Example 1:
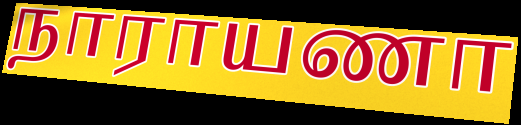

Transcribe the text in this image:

நாராயணா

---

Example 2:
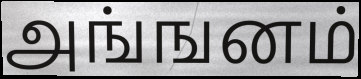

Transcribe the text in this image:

அங்ஙனம்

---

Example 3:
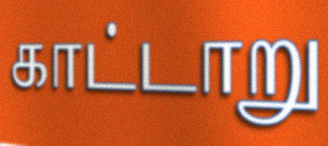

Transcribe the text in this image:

காட்டாறு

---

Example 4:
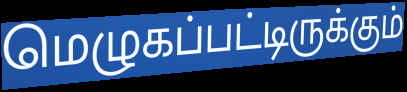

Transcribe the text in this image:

மெழுகப்பட்டிருக்கும்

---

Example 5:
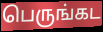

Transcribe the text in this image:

பெருங்கட